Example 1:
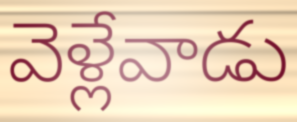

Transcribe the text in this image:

వెళ్లేవాడు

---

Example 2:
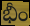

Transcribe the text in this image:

భీం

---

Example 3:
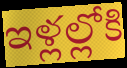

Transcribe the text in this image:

ఇళ్లల్లోకి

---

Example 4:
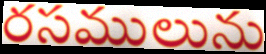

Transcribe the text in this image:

రసములును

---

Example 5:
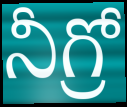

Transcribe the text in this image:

నీగ్రో